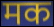
मक